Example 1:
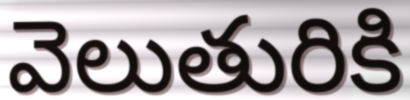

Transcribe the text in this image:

వెలుతురికి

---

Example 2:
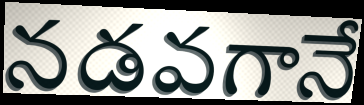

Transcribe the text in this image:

నడవగానే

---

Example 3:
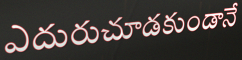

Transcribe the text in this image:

ఎదురుచూడకుండానే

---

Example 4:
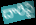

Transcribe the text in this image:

దారిపై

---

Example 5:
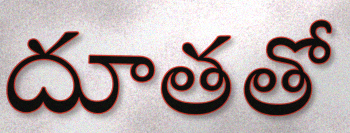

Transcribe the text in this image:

దూతతో